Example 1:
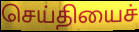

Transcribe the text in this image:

செய்தியைச்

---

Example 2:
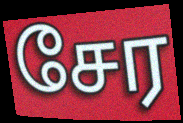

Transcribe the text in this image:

சேர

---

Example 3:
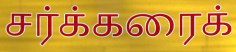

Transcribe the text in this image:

சர்க்கரைக்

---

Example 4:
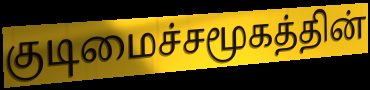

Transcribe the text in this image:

குடிமைச்சமூகத்தின்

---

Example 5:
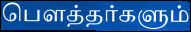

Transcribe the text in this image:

பௌத்தர்களும்